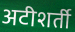
अटीशर्ती